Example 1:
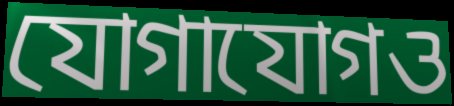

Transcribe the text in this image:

যোগাযোগও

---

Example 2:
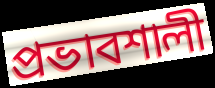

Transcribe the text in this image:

প্রভাবশালী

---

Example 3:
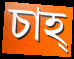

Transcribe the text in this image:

চাহ্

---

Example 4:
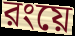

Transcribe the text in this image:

রংয়ে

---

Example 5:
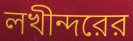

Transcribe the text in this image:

লখীন্দরের